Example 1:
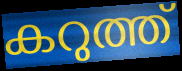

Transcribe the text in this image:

കറുത്ത്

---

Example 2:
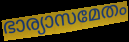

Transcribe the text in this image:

ഭാര്യാസമേതം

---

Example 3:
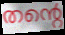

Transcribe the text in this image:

തന്റെ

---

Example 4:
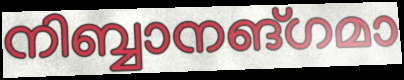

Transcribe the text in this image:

നിബ്ബാനങ്ഗമാ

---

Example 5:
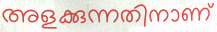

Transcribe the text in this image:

അളക്കുന്നതിനാണ്